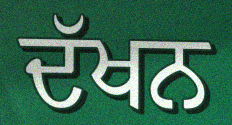
ਦੱਖਨ